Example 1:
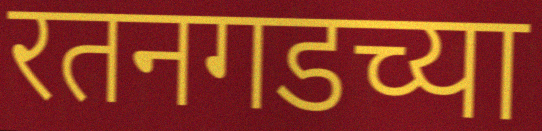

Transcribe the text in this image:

रतनगडच्या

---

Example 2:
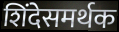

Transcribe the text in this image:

शिंदेसमर्थक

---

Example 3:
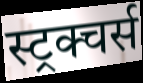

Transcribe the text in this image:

स्ट्रक्चर्स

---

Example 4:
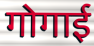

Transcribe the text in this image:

गोगाई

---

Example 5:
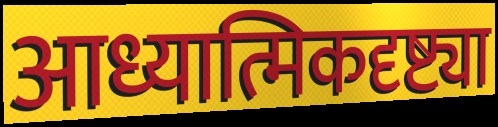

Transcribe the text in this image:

आध्यात्मिकदृष्ट्या